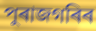
পুৰাজগৰিৰ